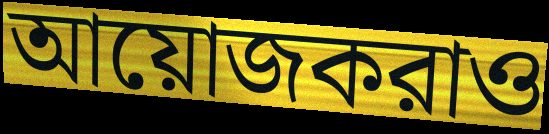
আয়োজকরাও